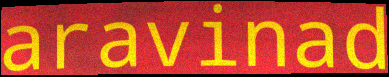
aravinad